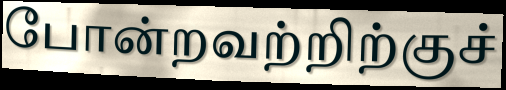
போன்றவற்றிற்குச்